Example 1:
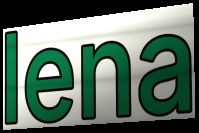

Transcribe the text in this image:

lena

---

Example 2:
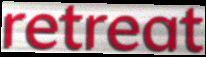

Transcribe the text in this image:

retreat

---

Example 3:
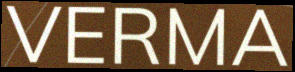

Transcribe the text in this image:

VERMA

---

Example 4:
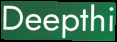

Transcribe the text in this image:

Deepthi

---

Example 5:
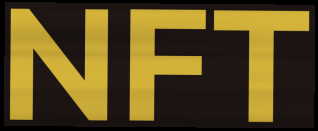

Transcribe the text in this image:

NFT